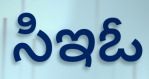
సిఇఓ